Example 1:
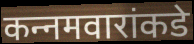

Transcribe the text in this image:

कन्नमवारांकडे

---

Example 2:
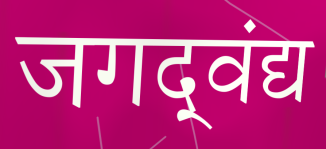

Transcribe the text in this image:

जगद्‌वंद्य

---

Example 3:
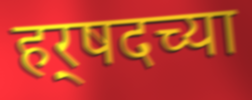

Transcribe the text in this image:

हर्षदच्या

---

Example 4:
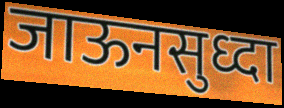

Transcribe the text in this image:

जाऊनसुध्दा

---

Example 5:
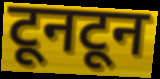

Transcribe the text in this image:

टूनटून